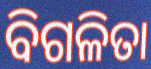
ବିଗଳିତା